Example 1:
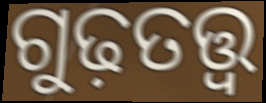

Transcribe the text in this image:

ଗୁଢ଼ତତ୍ତ୍ୱ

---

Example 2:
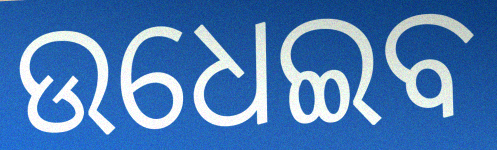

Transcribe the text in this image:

ଉଧେଇବ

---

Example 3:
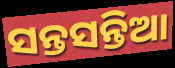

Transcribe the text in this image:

ସନ୍ତସନ୍ତିଆ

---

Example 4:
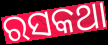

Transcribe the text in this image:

ରସକଥା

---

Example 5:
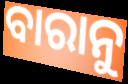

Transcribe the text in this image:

ବାରାନୁ